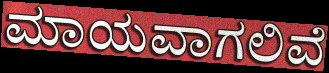
ಮಾಯವಾಗಲಿವೆ